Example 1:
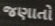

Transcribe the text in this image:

જણાતો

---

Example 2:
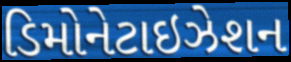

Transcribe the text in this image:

ડિમોનેટાઇઝેશન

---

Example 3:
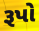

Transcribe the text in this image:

રૂપો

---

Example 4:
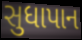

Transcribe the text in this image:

સુધાપાન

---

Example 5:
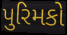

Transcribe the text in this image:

પુરિમકો